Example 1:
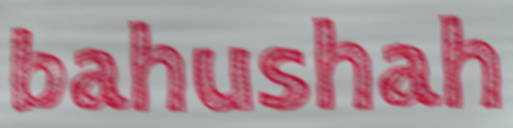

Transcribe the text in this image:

bahushah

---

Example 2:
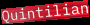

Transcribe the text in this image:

Quintilian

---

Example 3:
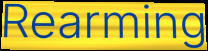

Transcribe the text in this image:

Rearming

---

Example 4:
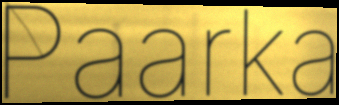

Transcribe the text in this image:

Paarka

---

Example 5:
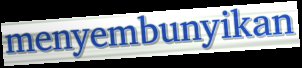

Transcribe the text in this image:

menyembunyikan